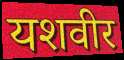
यशवीर